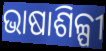
ଭାଷାଶିଳ୍ପୀ